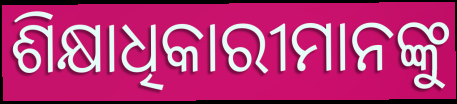
ଶିକ୍ଷାଧିକାରୀମାନଙ୍କୁ